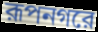
রূপনগরে